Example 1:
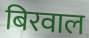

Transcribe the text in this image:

बिरवाल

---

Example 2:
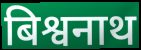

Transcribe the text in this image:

बिश्वनाथ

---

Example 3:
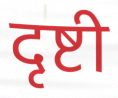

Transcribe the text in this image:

दृष्टी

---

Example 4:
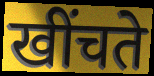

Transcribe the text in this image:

खींचते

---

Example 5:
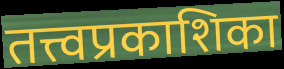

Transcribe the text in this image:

तत्त्वप्रकाशिका